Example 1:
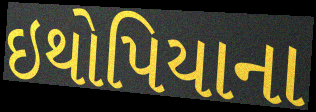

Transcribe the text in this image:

ઇથોપિયાના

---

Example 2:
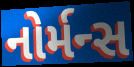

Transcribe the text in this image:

નોર્મન્સ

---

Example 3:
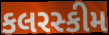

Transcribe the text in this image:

કલરસ્કીમ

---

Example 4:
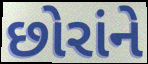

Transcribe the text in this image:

છોરાંને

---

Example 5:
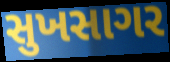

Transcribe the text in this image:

સુખસાગર